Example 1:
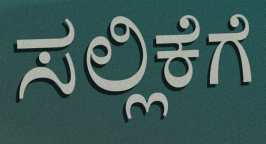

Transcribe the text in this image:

ಸಲ್ಲಿಕೆಗೆ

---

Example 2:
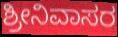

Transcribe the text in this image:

ಶ್ರೀನಿವಾಸರ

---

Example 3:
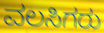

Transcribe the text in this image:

ವಲಸಿಗರು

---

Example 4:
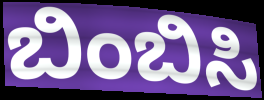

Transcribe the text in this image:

ಬಿಂಬಿಸಿ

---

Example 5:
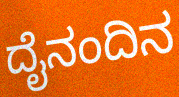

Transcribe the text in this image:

ದೈನಂದಿನ